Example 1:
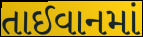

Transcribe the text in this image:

તાઈવાનમાં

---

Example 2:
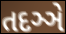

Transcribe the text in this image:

તદઞ્ઞે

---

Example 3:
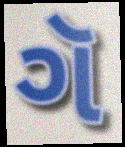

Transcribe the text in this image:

ગૅ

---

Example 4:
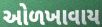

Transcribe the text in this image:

ઓળખાવાય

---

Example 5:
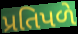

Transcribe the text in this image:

પ્રતિપળે